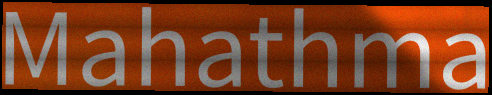
Mahathma